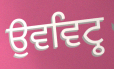
ਉਵਵਿਟ੍ਠ